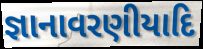
જ્ઞાનાવરણીયાદિ